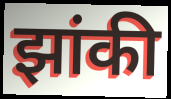
झांकी